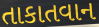
તાકાતવાન